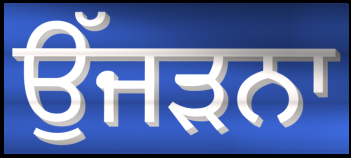
ਉੱਜੜਨਾ